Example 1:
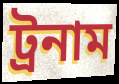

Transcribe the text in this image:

ট্রনাম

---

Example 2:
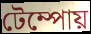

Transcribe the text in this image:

টেম্পোয়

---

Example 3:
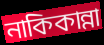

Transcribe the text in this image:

নাকিকান্না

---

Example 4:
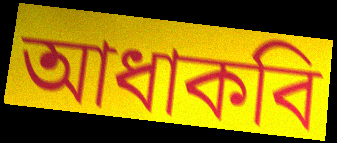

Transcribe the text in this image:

আধাকবি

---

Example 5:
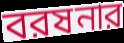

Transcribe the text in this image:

বরষনার